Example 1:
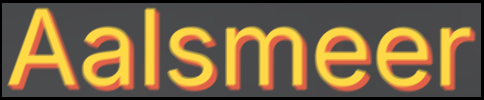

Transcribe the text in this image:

Aalsmeer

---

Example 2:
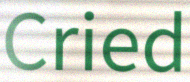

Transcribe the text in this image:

Cried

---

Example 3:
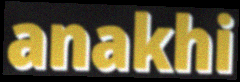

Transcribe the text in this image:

anakhi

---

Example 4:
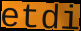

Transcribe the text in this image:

etdi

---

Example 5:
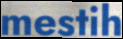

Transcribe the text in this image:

mestih